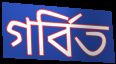
গর্বিত